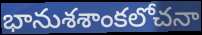
భానుశశాంకలోచనా